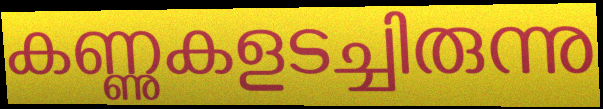
കണ്ണുകളടച്ചിരുന്നു